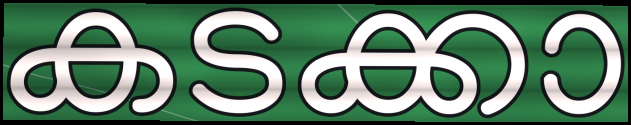
കടക്കാ